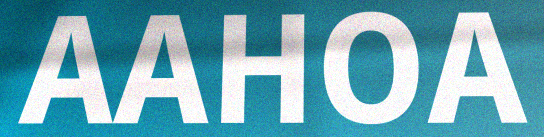
AAHOA